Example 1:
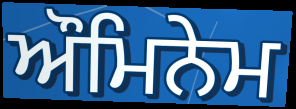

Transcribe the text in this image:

ਔਮਿਨੇਮ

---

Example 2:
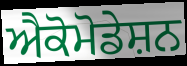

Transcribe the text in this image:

ਐਕੋਮੋਡੇਸ਼ਨ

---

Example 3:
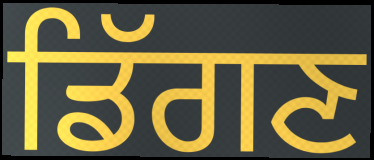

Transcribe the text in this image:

ਡਿੱਗਣ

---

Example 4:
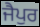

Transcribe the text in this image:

ਜੈਪੁਰ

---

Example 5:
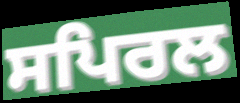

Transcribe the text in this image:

ਸਪਿਰਲ